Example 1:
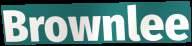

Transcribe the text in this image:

Brownlee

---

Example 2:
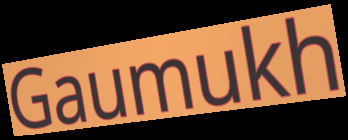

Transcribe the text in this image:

Gaumukh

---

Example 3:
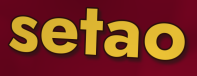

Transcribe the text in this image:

setao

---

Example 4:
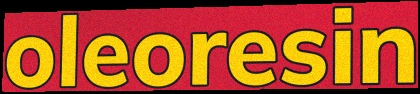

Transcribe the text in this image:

oleoresin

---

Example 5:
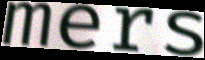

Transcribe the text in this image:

mers